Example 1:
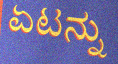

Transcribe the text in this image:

ಏಟನ್ನು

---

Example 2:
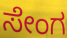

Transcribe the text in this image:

ಸೇಂಗ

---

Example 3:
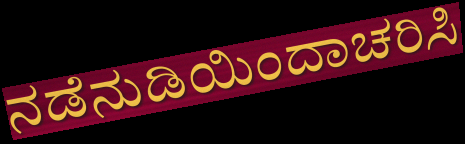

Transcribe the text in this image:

ನಡೆನುಡಿಯಿಂದಾಚರಿಸಿ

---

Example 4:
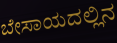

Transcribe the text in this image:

ಬೇಸಾಯದಲ್ಲಿನ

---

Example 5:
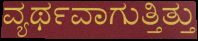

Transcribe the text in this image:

ವ್ಯರ್ಥವಾಗುತ್ತಿತ್ತು